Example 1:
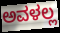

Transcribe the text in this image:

ಅವಳಲ್ಲ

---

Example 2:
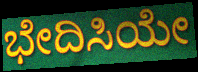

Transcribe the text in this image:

ಭೇದಿಸಿಯೇ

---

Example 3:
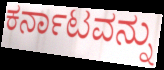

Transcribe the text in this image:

ಕರ್ನಾಟವನ್ನು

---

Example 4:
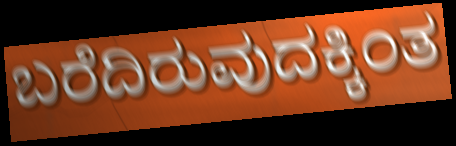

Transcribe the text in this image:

ಬರೆದಿರುವುದಕ್ಕಿಂತ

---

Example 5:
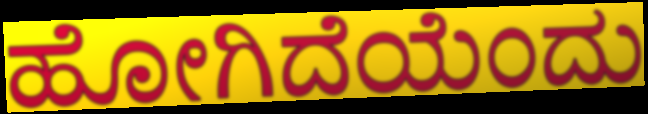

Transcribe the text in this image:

ಹೋಗಿದೆಯೆಂದು